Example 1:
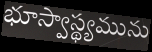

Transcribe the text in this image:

భూస్వాస్థ్యమును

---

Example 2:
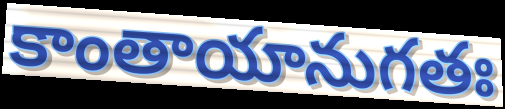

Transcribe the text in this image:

కాంతాయానుగతః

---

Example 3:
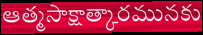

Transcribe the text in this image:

ఆత్మసాక్షాత్కారమునకు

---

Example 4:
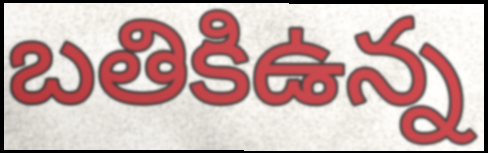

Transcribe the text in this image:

బతికిఉన్న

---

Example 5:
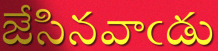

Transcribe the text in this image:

జేసినవాఁడు